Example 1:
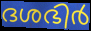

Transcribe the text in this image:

ദശഭിർ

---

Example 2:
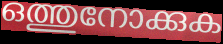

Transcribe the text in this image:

ഒത്തുനോക്കുക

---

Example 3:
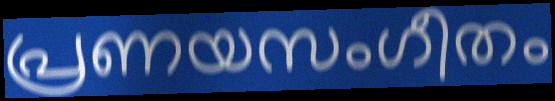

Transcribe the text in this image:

പ്രണയസംഗീതം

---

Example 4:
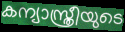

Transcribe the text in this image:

കന്യാസ്ത്രീയുടെ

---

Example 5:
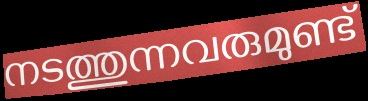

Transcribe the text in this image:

നടത്തുന്നവരുമുണ്ട്